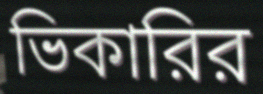
ভিকারির